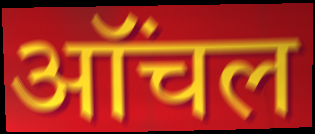
ऑंचल